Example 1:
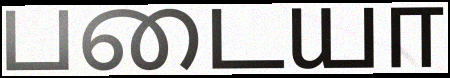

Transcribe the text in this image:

படையா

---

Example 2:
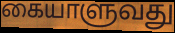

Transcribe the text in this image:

கையாளுவது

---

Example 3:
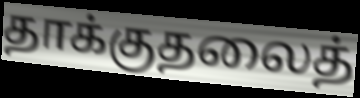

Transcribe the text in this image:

தாக்குதலைத்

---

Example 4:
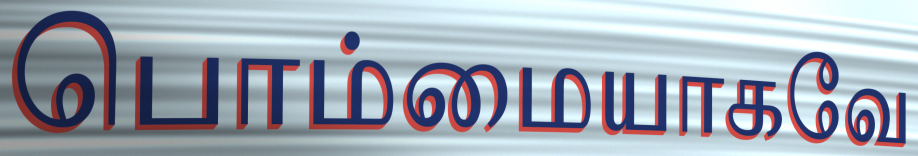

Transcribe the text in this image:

பொம்மையாகவே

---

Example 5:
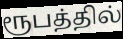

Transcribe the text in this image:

ரூபத்தில்